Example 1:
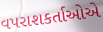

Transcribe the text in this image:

વપરાશકર્તાઓએ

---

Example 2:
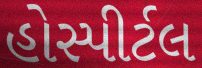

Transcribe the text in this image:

હોસ્પીર્ટલ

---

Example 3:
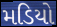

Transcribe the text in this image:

મડિયો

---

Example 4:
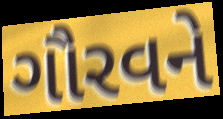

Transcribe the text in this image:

ગૌરવને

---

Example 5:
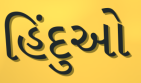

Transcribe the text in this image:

હિંદુઓ